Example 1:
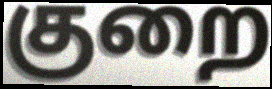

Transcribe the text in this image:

குறை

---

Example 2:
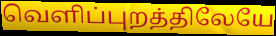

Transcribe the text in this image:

வெளிப்புறத்திலேயே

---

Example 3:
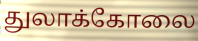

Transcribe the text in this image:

துலாக்கோலை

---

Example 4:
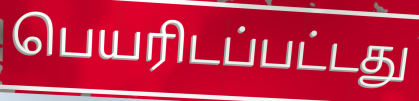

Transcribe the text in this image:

பெயரிடப்பட்டது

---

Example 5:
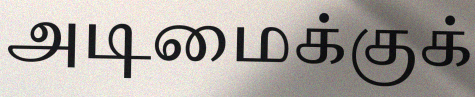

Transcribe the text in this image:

அடிமைக்குக்